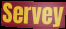
Servey